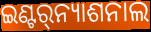
ଇଣ୍ଟର୍‌ନ୍ୟାଶନାଲ